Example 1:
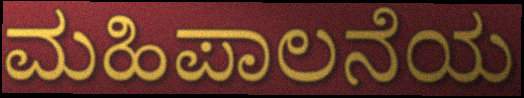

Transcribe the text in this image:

ಮಹಿಪಾಲನೆಯ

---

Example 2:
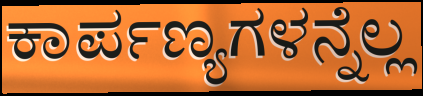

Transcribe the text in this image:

ಕಾರ್ಪಣ್ಯಗಳನ್ನೆಲ್ಲ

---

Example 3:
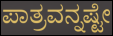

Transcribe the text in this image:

ಪಾತ್ರವನ್ನಷ್ಟೇ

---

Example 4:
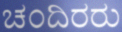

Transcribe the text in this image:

ಚಂದಿರರು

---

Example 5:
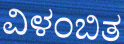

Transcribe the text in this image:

ವಿಳಂಬಿತ